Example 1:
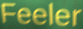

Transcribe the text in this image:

Feeler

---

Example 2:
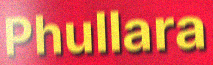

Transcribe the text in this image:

Phullara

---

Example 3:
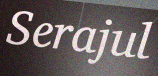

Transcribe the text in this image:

Serajul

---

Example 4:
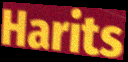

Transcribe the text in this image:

Harits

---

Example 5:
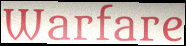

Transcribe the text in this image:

Warfare